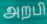
அறபி